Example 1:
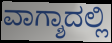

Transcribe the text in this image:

ವಾಗ್ಶಾದಲ್ಲಿ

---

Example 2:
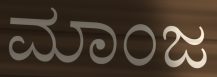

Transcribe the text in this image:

ಮಾಂಜ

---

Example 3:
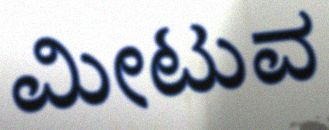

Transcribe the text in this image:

ಮೀಟುವ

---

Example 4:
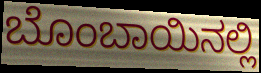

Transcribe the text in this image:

ಬೊಂಬಾಯಿನಲ್ಲಿ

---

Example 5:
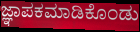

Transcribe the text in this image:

ಜ್ಞಾಪಕಮಾಡಿಕೊಂಡು